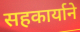
सहकार्याने